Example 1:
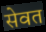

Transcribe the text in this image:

सेवत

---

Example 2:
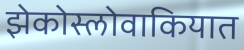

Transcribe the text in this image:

झेकोस्लोवाकियात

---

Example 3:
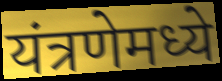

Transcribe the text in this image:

यंत्रणेमध्ये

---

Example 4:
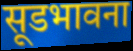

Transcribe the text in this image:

सूडभावना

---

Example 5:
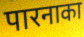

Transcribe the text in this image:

पारनाका